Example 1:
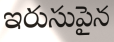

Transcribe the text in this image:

ఇరుసుపైన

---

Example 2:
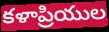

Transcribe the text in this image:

కళాప్రియుల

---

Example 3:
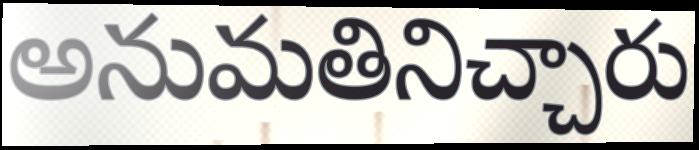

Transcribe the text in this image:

అనుమతినిచ్చారు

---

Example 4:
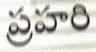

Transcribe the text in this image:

ప్రహరి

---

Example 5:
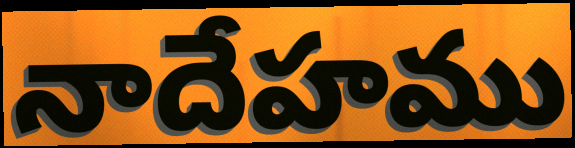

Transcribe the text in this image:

నాదేహము